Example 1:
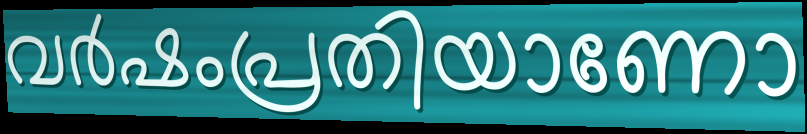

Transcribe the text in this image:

വർഷംപ്രതിയാണോ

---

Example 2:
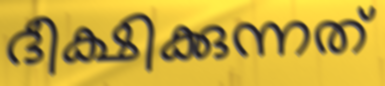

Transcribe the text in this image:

ദീക്ഷിക്കുന്നത്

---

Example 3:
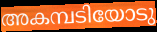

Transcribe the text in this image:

അകമ്പടിയോടു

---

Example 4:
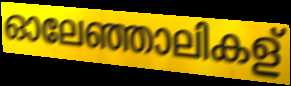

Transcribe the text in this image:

ഓലേഞ്ഞാലികള്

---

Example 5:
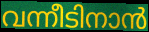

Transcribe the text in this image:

വന്നീടിനാൻ